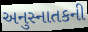
અનુસ્નાતકની